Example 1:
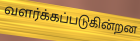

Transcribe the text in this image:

வளர்க்கப்படுகின்றன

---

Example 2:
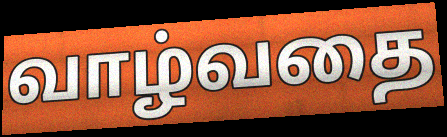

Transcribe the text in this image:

வாழ்வதை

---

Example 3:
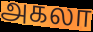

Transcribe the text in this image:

அகலா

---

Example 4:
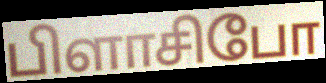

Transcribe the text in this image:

பிளாசிபோ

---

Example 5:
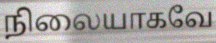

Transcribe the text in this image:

நிலையாகவே